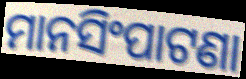
ମାନସିଂପାଟଣା